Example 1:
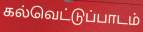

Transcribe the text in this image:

கல்வெட்டுப்பாடம்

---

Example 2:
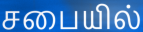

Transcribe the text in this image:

சபையில்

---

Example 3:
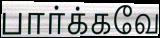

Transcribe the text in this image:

பார்க்கவே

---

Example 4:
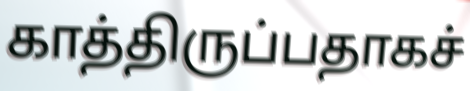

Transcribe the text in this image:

காத்திருப்பதாகச்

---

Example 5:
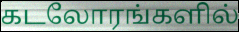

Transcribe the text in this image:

கடலோரங்களில்